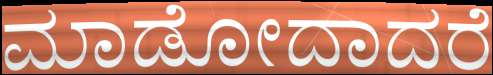
ಮಾಡೋದಾದರೆ